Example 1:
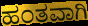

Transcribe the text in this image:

ಹಂತವಾಗಿ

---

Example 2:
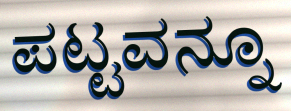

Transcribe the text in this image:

ಪಟ್ಟವನ್ನೂ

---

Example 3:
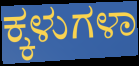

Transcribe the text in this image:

ಕ್ಕಳುಗಳಾ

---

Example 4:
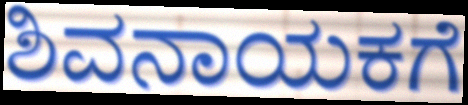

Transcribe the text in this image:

ಶಿವನಾಯಕಗೆ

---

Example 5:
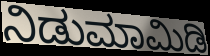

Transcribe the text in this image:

ನಿಡುಮಾಮಿಡಿ